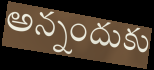
అన్నందుకు